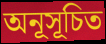
অনূসূচিত